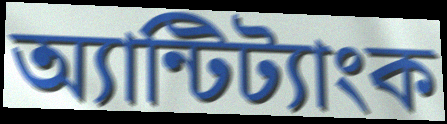
অ্যান্টিট্যাংক